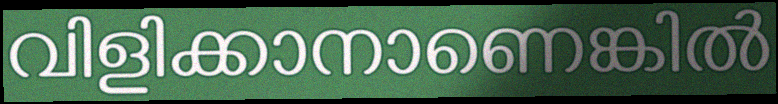
വിളിക്കാനാണെങ്കിൽ